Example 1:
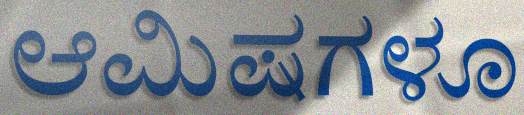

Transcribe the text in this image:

ಆಮಿಷಗಳೂ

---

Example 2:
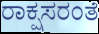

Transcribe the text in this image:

ರಾಕ್ಷಸರಂತೆ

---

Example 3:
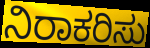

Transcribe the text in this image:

ನಿರಾಕರಿಸು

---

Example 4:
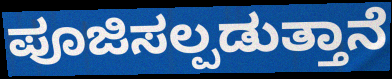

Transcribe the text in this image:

ಪೂಜಿಸಲ್ಪಡುತ್ತಾನೆ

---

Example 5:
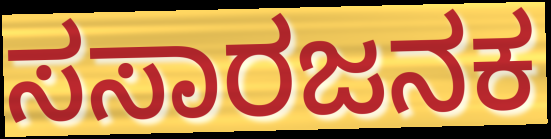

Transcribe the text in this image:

ಸಸಾರಜನಕ